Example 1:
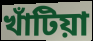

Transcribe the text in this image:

খাঁটিয়া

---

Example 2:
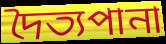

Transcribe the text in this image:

দৈত্যপানা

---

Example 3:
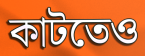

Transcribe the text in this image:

কাটতেও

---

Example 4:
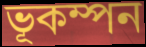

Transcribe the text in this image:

ভূকম্পন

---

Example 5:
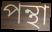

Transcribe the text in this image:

পন্থা